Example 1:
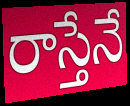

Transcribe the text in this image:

రాస్తేనే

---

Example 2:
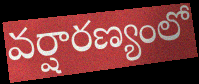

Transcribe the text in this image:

వర్షారణ్యంలో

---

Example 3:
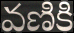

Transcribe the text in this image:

వణికి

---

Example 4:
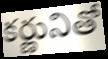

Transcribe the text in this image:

కర్ణునితో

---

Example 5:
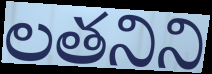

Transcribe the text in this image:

లతనిని